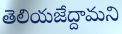
తెలియజేద్దామని